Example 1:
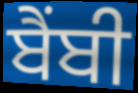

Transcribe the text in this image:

ਬੈਂਬੀ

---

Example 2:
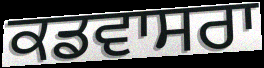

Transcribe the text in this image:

ਕਡਵਾਸਰਾ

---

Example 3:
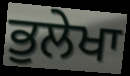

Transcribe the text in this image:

ਭੁਲੇਖਾ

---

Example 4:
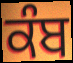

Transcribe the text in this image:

ਕੰਬ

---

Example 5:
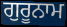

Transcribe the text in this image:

ਗੁਰੂਨਾਮ